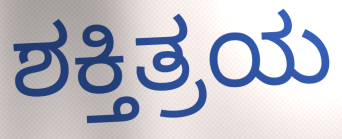
ಶಕ್ತಿತ್ರಯ